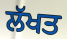
ਲੱਖਤ